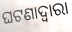
ଘଟଣାଦ୍ୱାରା